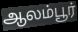
ஆலம்பூர்